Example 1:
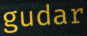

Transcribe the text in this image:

gudar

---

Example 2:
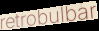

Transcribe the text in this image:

retrobulbar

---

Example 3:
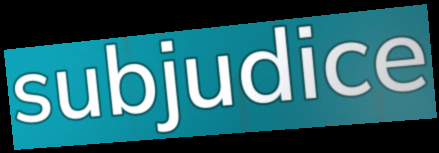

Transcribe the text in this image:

subjudice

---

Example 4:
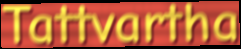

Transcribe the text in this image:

Tattvartha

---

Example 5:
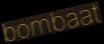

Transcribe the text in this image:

bombaat